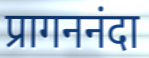
प्रागननंदा